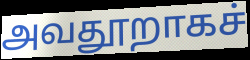
அவதூறாகச்